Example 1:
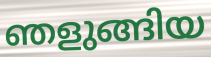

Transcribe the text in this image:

ഞളുങ്ങിയ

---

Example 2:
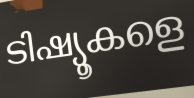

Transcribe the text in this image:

ടിഷ്യൂകളെ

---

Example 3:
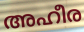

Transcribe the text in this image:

അഹീര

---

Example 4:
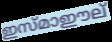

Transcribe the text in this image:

ഇസ്മാഈല്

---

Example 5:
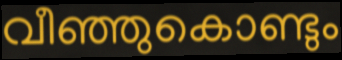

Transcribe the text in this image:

വീഞ്ഞുകൊണ്ടും